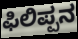
ಫಿಲಿಪ್ಪನ